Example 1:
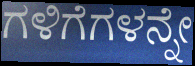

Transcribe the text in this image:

ಗಳಿಗೆಗಳನ್ನೇ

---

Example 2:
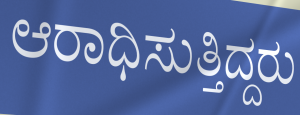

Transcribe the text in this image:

ಆರಾಧಿಸುತ್ತಿದ್ದರು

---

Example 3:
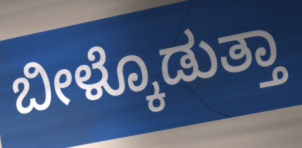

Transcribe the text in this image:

ಬೀಳ್ಕೊಡುತ್ತಾ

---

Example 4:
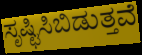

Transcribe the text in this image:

ಸೃಷ್ಟಿಸಿಬಿಡುತ್ತವೆ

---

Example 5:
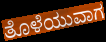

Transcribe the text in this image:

ತೊಳೆಯುವಾಗ